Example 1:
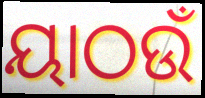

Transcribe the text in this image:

ୟାଠଉଁ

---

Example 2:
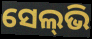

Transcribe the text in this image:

ସେଲ୍‌ଭି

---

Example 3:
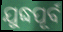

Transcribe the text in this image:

ଯୁଦ୍ଧପୂର୍ବ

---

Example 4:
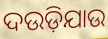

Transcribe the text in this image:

ଦଉଡ଼ିଯାଉ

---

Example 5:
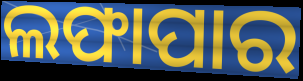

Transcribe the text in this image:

ଲଫାପାର